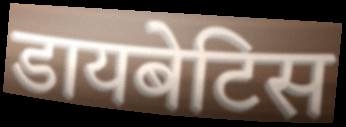
डायबेटिस